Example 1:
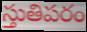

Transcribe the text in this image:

స్తుతిపరం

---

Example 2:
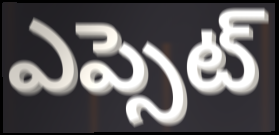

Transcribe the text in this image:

ఎప్సెట్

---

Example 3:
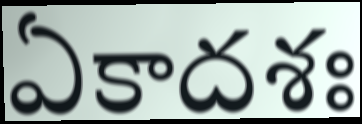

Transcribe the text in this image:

ఏకాదశః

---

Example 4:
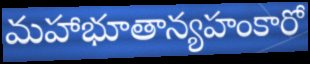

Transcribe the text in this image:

మహాభూతాన్యహంకారో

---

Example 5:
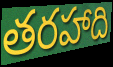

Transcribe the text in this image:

తరహాది